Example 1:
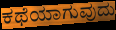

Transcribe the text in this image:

ಕಥೆಯಾಗುವುದು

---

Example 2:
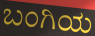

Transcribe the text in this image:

ಬಂಗಿಯ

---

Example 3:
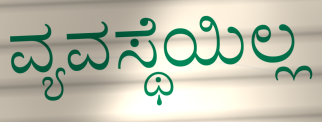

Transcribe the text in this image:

ವ್ಯವಸ್ಥೆಯಿಲ್ಲ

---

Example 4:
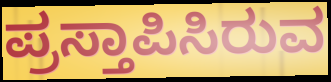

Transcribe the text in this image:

ಪ್ರಸ್ತಾಪಿಸಿರುವ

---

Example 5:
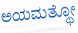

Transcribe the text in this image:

ಅಯಮತ್ಥೋ